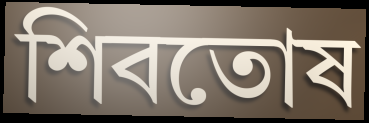
শিবতোষ